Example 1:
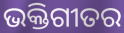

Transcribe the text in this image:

ଭକ୍ତିଗୀତର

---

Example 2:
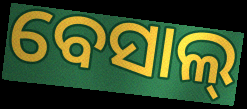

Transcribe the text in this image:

ବେସାଲ୍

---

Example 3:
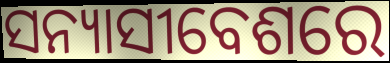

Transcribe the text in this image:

ସନ୍ୟାସୀବେଶରେ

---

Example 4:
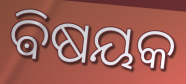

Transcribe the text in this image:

ଵିଷୟକ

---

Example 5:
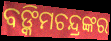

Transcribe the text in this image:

ବଙ୍କିମଚନ୍ଦ୍ରଙ୍କର